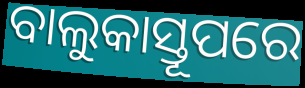
ବାଲୁକାସ୍ତୂପରେ